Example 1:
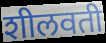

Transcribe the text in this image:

शीलवती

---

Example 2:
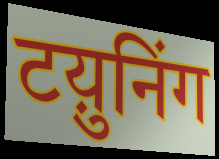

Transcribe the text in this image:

टय़ुनिंग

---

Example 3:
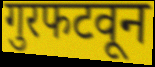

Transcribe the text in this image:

गुरफटवून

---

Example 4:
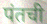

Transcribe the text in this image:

पंतची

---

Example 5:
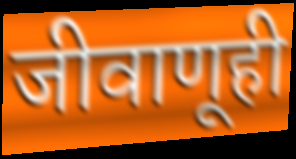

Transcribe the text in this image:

जीवाणूही